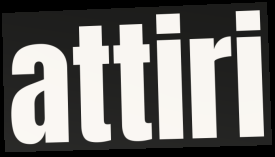
attiri